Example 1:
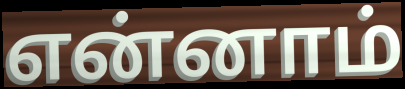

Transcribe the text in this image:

என்னாம்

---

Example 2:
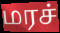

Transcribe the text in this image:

மரச்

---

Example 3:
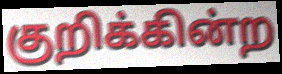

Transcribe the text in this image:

குறிக்கின்ற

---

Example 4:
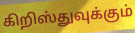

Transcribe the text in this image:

கிறிஸ்துவுக்கும்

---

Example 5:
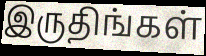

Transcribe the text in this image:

இருதிங்கள்